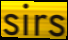
sirs